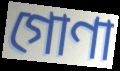
গোণা